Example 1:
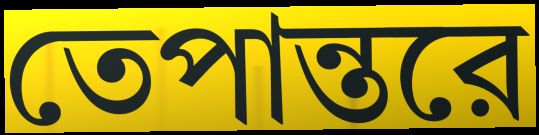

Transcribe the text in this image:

তেপান্তরে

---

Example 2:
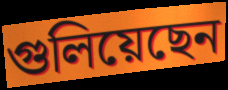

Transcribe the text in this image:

গুলিয়েছেন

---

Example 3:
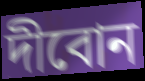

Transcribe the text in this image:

দীবোন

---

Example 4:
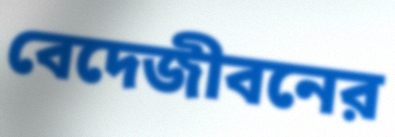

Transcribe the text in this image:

বেদেজীবনের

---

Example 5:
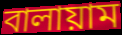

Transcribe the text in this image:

বালায়াম